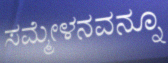
ಸಮ್ಮೇಳನವನ್ನೂ